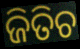
ଜିତିଚ